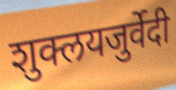
शुक्लयजुर्वेदी